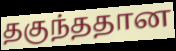
தகுந்ததான